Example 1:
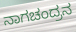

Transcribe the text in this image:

ನಾಗಚಂದ್ರನ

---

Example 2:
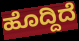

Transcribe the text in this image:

ಹೊದ್ದಿದೆ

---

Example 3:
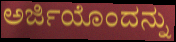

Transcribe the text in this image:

ಅರ್ಜಿಯೊಂದನ್ನು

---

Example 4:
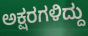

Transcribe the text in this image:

ಅಕ್ಷರಗಳಿದ್ದು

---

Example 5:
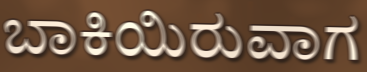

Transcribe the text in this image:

ಬಾಕಿಯಿರುವಾಗ